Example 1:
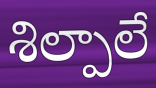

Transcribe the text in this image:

శిల్పాలే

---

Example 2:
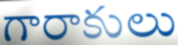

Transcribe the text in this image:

గారాకులు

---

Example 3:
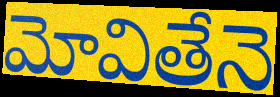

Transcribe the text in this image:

మోవితేనె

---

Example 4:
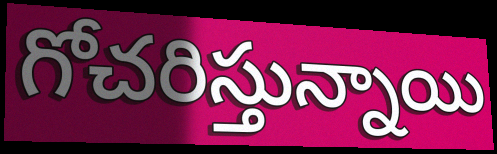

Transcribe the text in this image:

గోచరిస్తున్నాయి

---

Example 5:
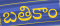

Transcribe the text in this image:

బతికాం